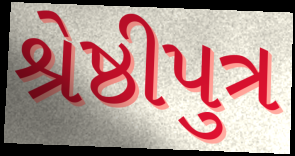
શ્રેષ્ઠીપુત્ર